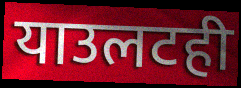
याउलटही